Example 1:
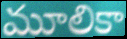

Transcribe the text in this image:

మూలికా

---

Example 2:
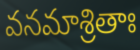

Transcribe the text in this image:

వనమాశ్రితాః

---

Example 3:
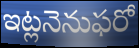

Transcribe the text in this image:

ఇట్లనెనుఫరో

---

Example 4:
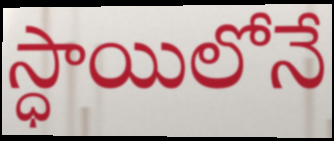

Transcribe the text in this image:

స్ధాయిలోనే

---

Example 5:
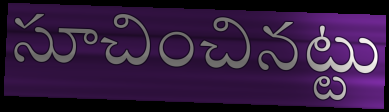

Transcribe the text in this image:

సూచించినట్టు